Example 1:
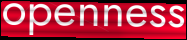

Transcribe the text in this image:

openness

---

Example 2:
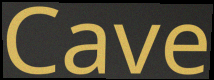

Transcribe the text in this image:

Cave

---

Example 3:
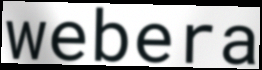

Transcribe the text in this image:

webera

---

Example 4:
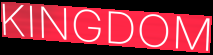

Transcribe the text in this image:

KINGDOM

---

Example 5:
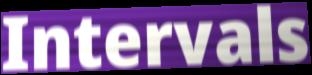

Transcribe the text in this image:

Intervals